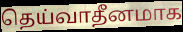
தெய்வாதீனமாக